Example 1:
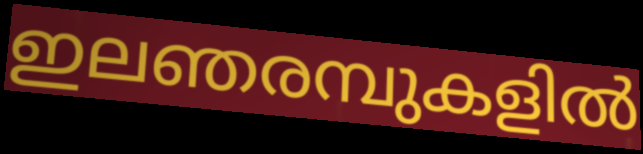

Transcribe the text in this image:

ഇലഞരമ്പുകളിൽ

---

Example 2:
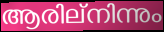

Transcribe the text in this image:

ആരില്നിന്നും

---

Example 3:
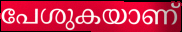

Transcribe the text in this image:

പേശുകയാണ്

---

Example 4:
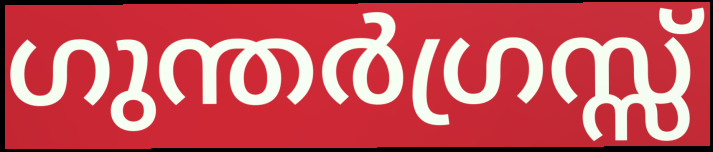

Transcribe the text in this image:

ഗുന്തർഗ്രസ്സ്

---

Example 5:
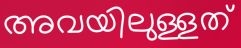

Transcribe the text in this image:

അവയിലുള്ളത്